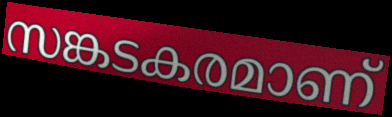
സങ്കടകരമാണ്